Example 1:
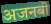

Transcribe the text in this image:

अजनबी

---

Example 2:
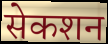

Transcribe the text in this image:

सेकशन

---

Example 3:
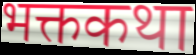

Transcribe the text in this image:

भक्तकथा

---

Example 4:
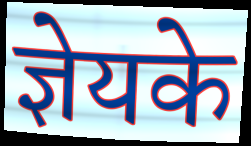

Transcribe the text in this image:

ज्ञेयके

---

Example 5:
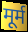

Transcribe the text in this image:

मूर्म